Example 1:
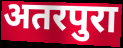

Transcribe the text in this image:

अतरपुरा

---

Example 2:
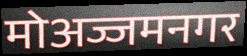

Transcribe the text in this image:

मोअज्जमनगर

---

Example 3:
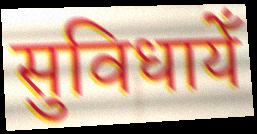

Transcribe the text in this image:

सुविधायेँ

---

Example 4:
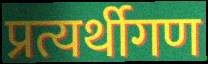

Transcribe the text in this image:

प्रत्यर्थीगण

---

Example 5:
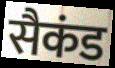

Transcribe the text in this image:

सैकंड